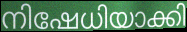
നിഷേധിയാക്കി